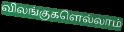
விலங்குகளெல்லாம்